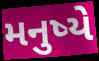
મનુષ્યે